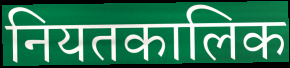
नियतकालिक